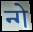
न्गे